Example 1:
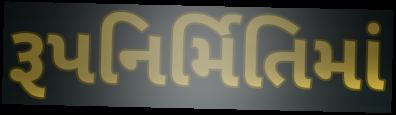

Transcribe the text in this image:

રૂપનિર્મિતિમાં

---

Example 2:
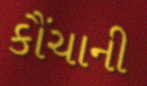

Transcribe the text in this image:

કૌંચાની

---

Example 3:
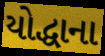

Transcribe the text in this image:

યોદ્ધાના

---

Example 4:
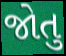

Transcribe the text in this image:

જોતુ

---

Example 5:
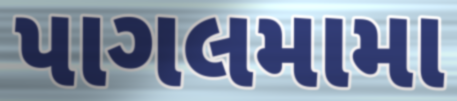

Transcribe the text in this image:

પાગલમામા